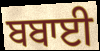
ਬਬਾਈ